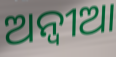
ଅନ୍ବୀଆ